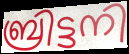
ബ്രിട്ടനി